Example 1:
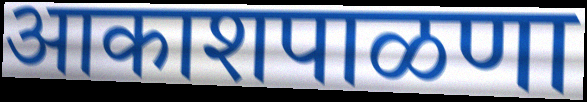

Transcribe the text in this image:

आकाशपाळणा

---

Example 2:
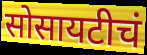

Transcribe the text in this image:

सोसायटीचं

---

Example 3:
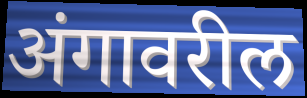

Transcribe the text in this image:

अंगावरील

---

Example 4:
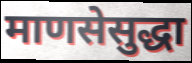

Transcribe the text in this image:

माणसेसुद्धा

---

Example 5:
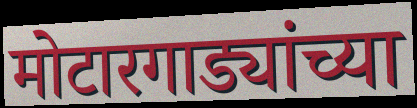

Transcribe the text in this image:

मोटारगाड्यांच्या